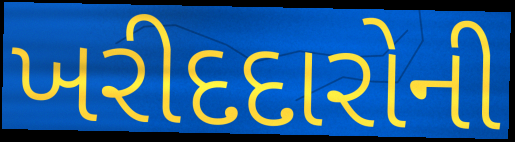
ખરીદદારોની